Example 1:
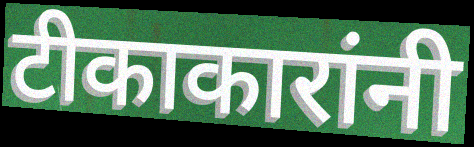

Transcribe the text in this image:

टीकाकारांनी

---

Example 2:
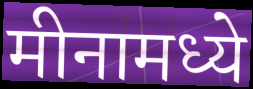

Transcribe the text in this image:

मीनामध्ये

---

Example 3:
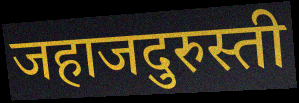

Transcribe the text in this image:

जहाजदुरुस्ती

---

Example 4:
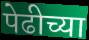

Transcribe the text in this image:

पेढीच्या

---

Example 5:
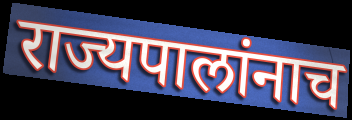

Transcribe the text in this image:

राज्यपालांनाच